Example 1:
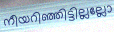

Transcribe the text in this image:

നീയറിഞ്ഞിട്ടില്ലല്ലോ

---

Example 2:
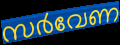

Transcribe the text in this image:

സർവേണ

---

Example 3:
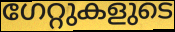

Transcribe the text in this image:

ഗേറ്റുകളുടെ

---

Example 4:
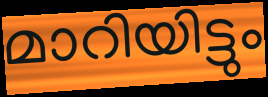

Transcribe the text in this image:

മാറിയിട്ടും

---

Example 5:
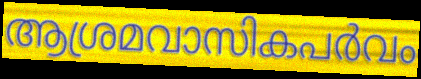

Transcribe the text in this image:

ആശ്രമവാസികപർവം